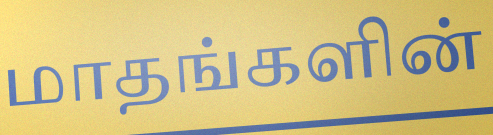
மாதங்களின்